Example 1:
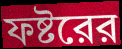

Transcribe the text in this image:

ফষ্টরের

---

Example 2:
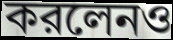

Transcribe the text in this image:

করলেনও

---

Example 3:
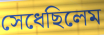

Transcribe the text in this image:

সেধেছিলেম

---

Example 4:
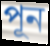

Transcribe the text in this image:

পূন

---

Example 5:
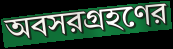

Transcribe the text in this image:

অবসরগ্রহণের